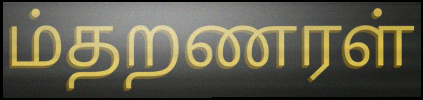
ம்தறணரள்